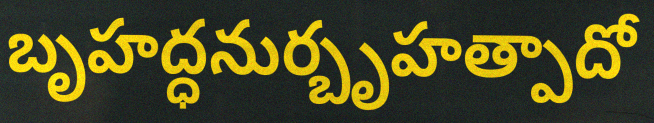
బృహద్ధనుర్బృహత్పాదో